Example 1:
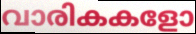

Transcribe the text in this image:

വാരികകളോ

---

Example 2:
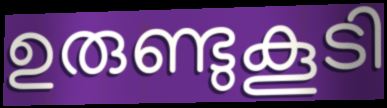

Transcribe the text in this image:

ഉരുണ്ടുകൂടി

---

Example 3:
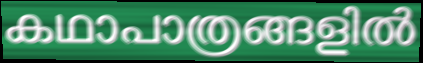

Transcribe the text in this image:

കഥാപാത്രങ്ങളിൽ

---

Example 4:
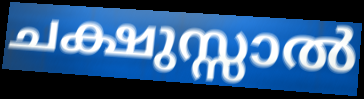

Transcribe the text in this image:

ചക്ഷുസ്സാൽ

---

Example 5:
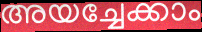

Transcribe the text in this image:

അയച്ചേക്കാം